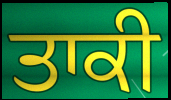
ਤਾਕੀ